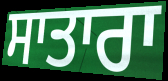
ਸਾਤਾਰਾ